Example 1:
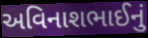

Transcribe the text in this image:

અવિનાશભાઈનું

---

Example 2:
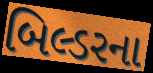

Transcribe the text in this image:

બિલ્ડરના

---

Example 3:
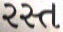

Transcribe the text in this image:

રસ્ત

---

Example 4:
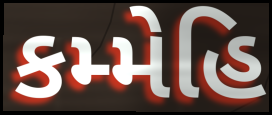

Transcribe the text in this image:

કમ્મેહિ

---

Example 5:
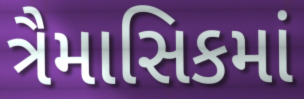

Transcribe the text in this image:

ત્રૈમાસિકમાં